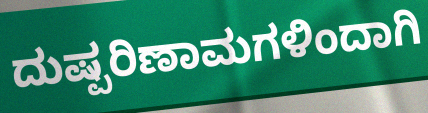
ದುಷ್ಪರಿಣಾಮಗಳಿಂದಾಗಿ